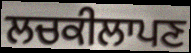
ਲਚਕੀਲਾਪਣ